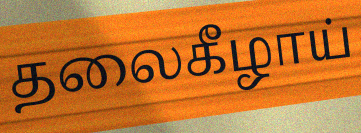
தலைகீழாய்